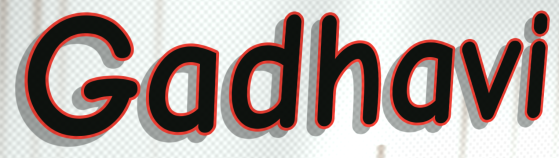
Gadhavi